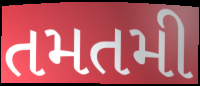
તમતમી